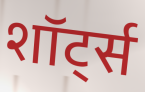
शॉर्ट्स